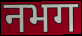
नभग